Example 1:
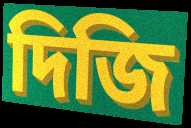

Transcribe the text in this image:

দিজি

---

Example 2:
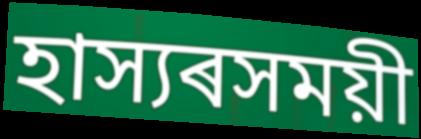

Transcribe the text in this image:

হাস্যৰসময়ী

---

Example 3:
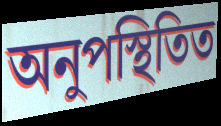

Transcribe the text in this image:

অনুপস্থিতিত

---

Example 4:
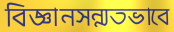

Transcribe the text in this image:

বিজ্ঞানসন্মতভাবে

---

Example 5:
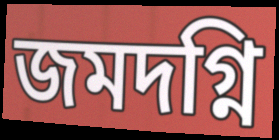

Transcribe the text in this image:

জমদগ্নি